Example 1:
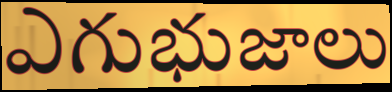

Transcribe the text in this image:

ఎగుభుజాలు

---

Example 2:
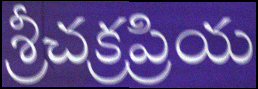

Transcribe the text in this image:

శ్రీచక్రప్రియ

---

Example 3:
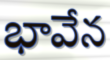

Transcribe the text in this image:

భావేన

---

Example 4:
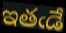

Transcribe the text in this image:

ఇతఁడే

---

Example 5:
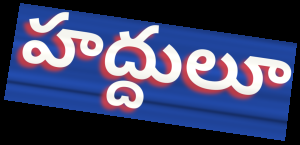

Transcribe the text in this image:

హద్దులూ